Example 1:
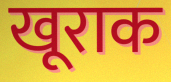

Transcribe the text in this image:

खूराक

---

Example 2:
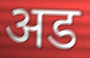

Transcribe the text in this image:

अड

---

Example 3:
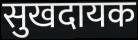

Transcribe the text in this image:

सुखदायक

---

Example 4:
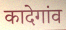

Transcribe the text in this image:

कादेगांव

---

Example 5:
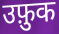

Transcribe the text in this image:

उफ़ुक